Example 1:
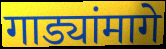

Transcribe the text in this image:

गाड्यांमागे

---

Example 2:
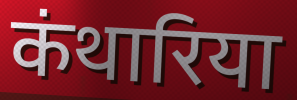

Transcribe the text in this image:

कंथारिया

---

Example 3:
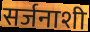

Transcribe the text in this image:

सर्जनाशी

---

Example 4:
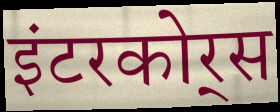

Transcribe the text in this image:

इंटरकोर्स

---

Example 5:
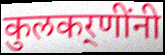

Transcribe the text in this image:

कुलकर्णींनी